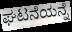
ಘಟನೆಯನ್ನೆ